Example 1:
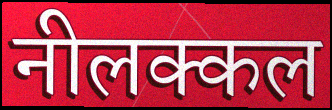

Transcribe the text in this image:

नीलक्कल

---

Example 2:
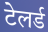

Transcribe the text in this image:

टेलर्ड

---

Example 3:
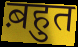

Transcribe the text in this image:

ब़हुत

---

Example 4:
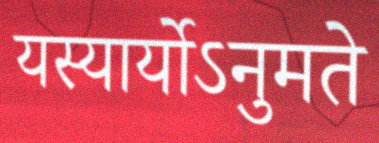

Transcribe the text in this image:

यस्यार्योऽनुमते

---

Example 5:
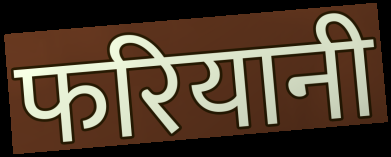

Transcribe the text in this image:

फरियानी